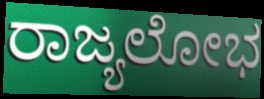
ರಾಜ್ಯಲೋಭ